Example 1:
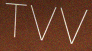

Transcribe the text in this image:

TVV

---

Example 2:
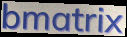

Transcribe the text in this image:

bmatrix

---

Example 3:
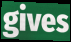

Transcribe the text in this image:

gives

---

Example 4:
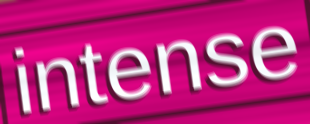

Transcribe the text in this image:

intense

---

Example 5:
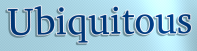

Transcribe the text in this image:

Ubiquitous